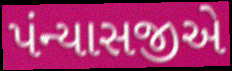
પંન્યાસજીએ